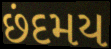
છંદમય